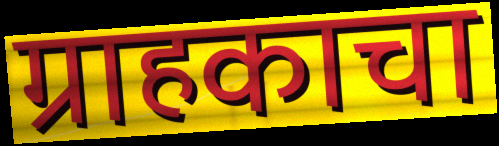
ग्राहकाचा